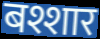
बश्शार